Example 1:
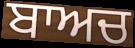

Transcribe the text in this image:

ਬਾਅਚ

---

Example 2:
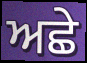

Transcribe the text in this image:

ਅਛੇ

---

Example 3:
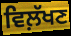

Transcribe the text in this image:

ਵਿਲ਼ੱਖਣ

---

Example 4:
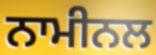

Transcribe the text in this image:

ਨਾਮੀਨਲ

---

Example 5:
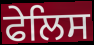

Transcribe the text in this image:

ਫੇਲਿਸ